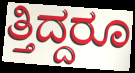
ತ್ತಿದ್ದರೂ